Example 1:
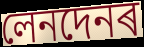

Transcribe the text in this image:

লেনদেনৰ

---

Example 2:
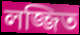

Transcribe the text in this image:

লজ্জিত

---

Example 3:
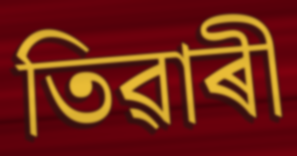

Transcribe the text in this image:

তিৱাৰী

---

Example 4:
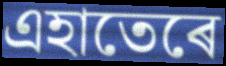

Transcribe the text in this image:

এহাতেৰে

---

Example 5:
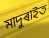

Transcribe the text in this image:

মাদুৰাইত